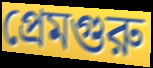
প্রেমগুরু